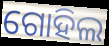
ଗୋହିଲ